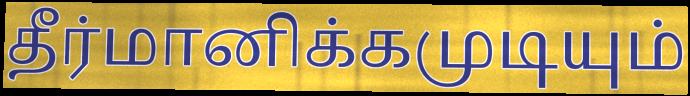
தீர்மானிக்கமுடியும்